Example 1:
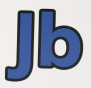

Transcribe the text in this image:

Jb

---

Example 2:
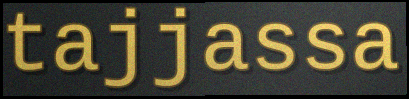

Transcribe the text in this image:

tajjassa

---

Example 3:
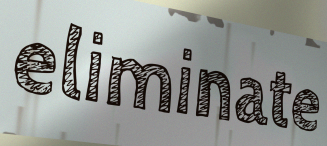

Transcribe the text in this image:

eliminate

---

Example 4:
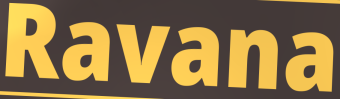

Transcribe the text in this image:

Ravana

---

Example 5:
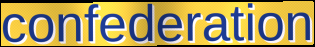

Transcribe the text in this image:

confederation